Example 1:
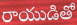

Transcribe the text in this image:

రాయుడితో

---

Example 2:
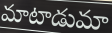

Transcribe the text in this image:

మాటాడుమా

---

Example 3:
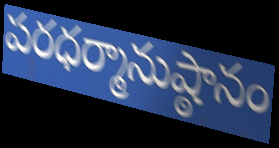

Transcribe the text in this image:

పరధర్మానుష్ఠానం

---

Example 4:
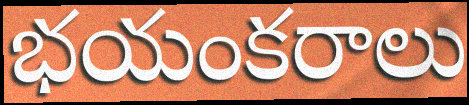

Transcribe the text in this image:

భయంకరాలు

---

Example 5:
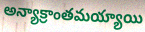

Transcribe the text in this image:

అన్యాక్రాంతమయ్యాయి